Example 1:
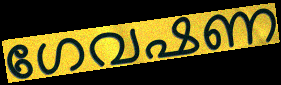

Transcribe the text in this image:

ഗേവഷണ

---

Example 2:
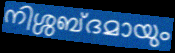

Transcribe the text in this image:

നിശ്ശബ്ദമായും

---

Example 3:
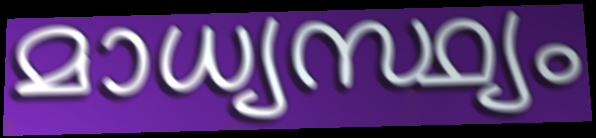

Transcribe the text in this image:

മാധ്യസ്ഥ്യം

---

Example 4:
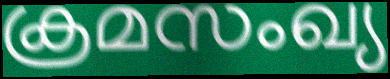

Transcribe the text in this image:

ക്രമസംഖ്യ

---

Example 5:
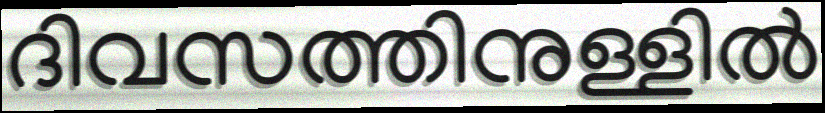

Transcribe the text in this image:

ദിവസത്തിനുള്ളിൽ